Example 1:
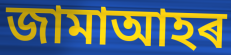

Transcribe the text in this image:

জামাআহৰ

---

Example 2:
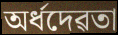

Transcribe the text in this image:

অৰ্ধদেৱতা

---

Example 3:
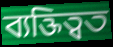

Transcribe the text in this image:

ব্যক্তিত্বত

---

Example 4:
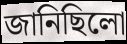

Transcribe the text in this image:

জানিছিলো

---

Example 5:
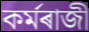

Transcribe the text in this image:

কৰ্মৰাজী